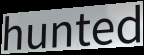
hunted